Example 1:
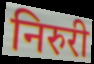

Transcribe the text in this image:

निरुरी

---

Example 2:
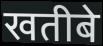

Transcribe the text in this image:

खतीबे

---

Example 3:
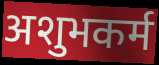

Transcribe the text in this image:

अशुभकर्म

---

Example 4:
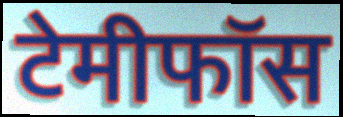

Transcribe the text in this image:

टेमीफॉस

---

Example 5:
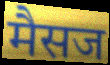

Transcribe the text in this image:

मैसज